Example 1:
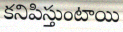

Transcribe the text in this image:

కనిపిస్తుంటాయి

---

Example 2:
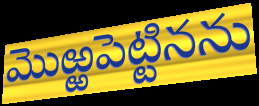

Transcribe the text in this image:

మొఱ్ఱపెట్టినను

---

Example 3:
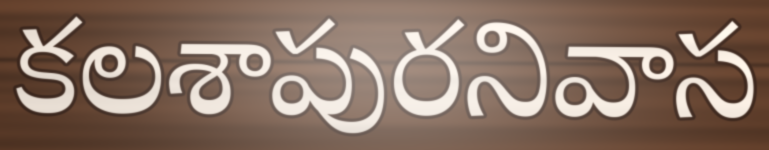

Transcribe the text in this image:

కలశాపురనివాస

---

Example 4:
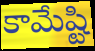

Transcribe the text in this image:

కామేష్టి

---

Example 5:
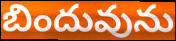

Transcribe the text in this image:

బిందువును